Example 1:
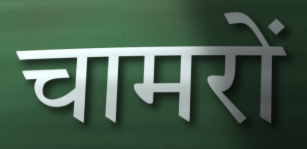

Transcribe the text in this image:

चामरों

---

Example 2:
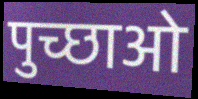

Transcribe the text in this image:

पुच्छाओ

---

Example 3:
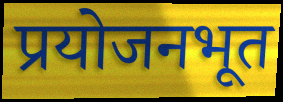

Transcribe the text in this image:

प्रयोजनभूत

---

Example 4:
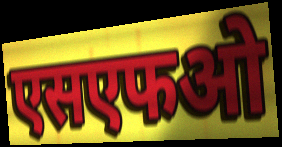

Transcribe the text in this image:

एसएफओ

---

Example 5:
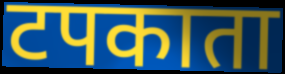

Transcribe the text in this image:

टपकाता